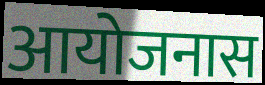
आयोजनास